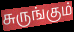
சுருங்கும்